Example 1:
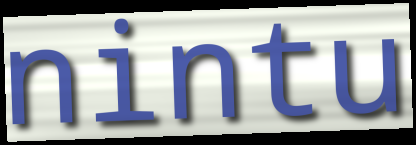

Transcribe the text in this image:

nintu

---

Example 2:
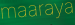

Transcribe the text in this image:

maaraya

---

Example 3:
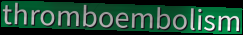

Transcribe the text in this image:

thromboembolism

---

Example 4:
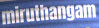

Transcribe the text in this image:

miruthangam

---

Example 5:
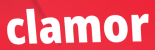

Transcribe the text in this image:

clamor